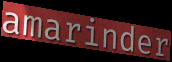
amarinder